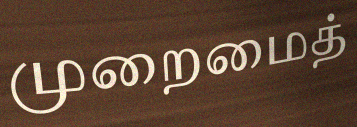
முறைமைத்